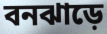
বনঝাড়ে